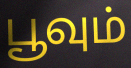
பூவும்